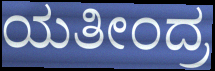
ಯತೀಂದ್ರ